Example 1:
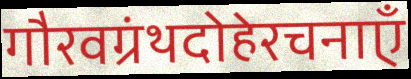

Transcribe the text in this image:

गौरवग्रंथदोहेरचनाएँ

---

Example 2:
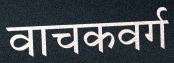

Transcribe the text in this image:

वाचकवर्ग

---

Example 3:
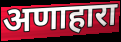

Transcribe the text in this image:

अणाहारा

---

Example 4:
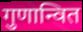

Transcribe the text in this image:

गुणान्वित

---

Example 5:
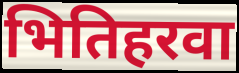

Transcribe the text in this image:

भितिहरवा